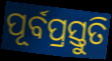
ପୂର୍ବପ୍ରସ୍ତୁତି